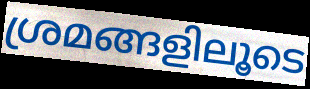
ശ്രമങ്ങളിലൂടെ